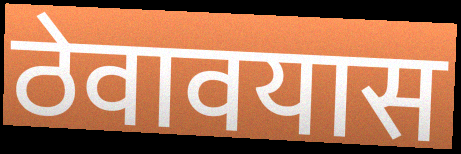
ठेवावयास